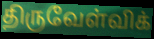
திருவேள்விக்